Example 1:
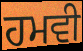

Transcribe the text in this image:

ਹਮਵੀ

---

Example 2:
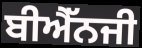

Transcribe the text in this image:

ਬੀਐੱਨਜੀ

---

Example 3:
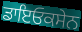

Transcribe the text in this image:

ਡਾਇਓਕਸੇਨ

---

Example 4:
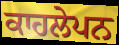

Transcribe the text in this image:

ਕਾਹਲੇਪਨ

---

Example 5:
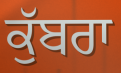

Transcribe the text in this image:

ਕੁੱਬਰਾ